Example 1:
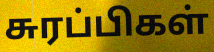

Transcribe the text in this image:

சுரப்பிகள்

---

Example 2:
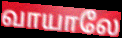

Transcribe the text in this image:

வாயாலே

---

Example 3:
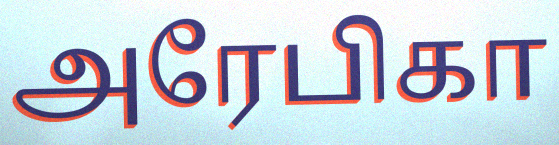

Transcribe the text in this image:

அரேபிகா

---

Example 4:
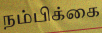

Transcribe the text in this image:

நம்பிக்கை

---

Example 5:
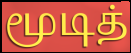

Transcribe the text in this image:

மூடித்